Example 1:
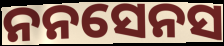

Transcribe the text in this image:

ନନସେନସ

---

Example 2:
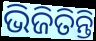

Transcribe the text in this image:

ଭିଜିତିନ୍ତି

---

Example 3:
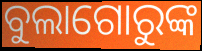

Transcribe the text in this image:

ବୁଲାଗୋରୁଙ୍କ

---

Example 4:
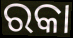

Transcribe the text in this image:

ରକା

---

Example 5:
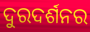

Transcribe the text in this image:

ଦୁରଦର୍ଶନର